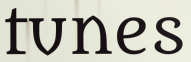
tunes